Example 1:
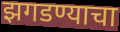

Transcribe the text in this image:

झगडण्याचा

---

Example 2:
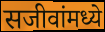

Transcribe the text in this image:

सजीवांमध्ये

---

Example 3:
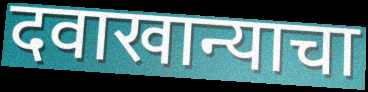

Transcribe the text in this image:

दवाखान्याचा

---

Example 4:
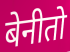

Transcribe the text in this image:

बेनीतो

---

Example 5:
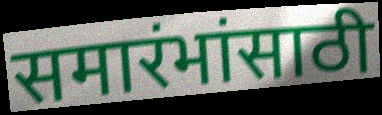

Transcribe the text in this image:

समारंभांसाठी